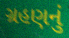
ગ્રહણનું